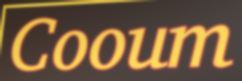
Cooum